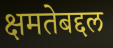
क्षमतेबद्दल